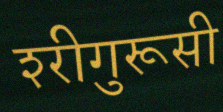
श्रीगुरूसी